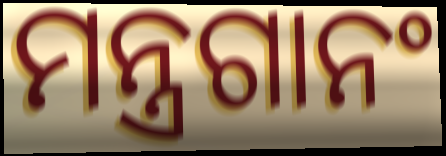
ମନ୍ତ୍ରଗାନଂ